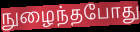
நுழைந்தபோது